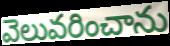
వెలువరించాను